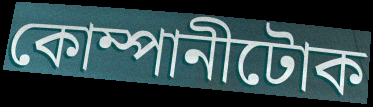
কোম্পানীটোক